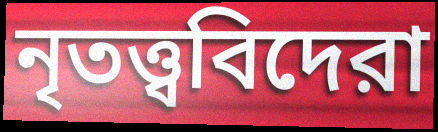
নৃতত্ত্ববিদেরা